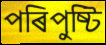
পৰিপুষ্টি